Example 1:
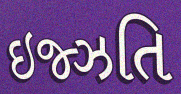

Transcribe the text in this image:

ઇજ્ઝતિ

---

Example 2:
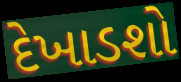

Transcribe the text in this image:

દેખાડશો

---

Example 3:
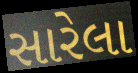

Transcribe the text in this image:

સારેલા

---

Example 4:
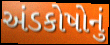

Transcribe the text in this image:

અંડકોષોનું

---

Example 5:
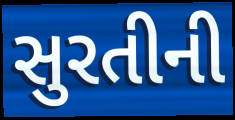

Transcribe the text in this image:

સુરતીની